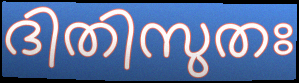
ദിതിസുതഃ